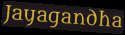
Jayagandha